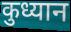
कुध्यान